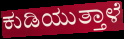
ಕುಡಿಯುತ್ತಾಳೆ